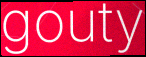
gouty